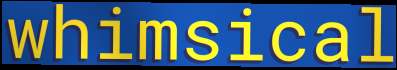
whimsical